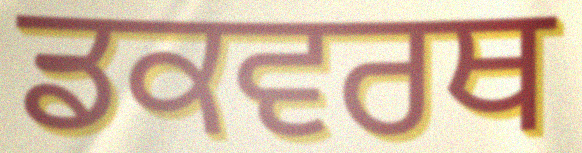
ਡਕਵਰਥ